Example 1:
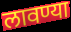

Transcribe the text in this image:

लावण्या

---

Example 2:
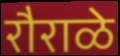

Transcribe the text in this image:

रौराळे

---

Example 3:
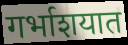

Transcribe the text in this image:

गर्भाशयात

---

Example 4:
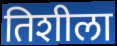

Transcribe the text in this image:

तिशीला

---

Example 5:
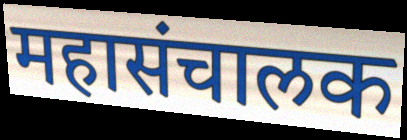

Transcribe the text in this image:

महासंचालक